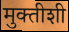
मुक्तीशी